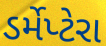
ડર્મેપ્ટેરા